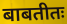
बाबतीतः